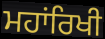
ਮਹਾਂਰਿਖੀ